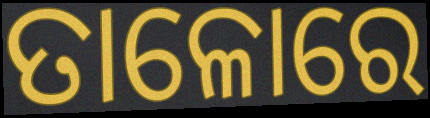
ତାଳୋରେ